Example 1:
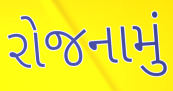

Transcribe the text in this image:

રોજનામું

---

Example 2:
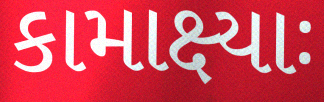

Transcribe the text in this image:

કામાક્ષ્યાઃ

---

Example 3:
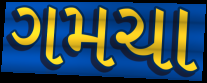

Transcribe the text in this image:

ગમચા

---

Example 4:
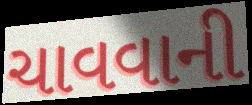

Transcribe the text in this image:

ચાવવાની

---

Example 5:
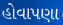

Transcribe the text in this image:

હોવાપણા